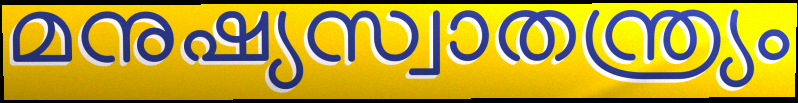
മനുഷ്യസ്വാതന്ത്ര്യം